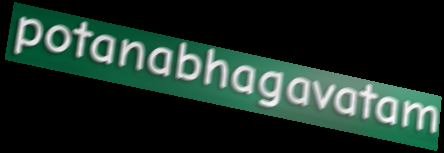
potanabhagavatam